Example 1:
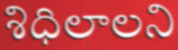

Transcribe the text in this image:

శిధిలాలని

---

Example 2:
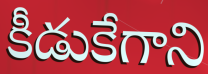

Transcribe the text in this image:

కీడుకేగాని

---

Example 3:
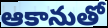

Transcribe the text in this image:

ఆకానుతో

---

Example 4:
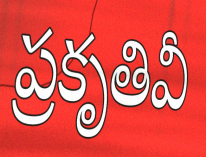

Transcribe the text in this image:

ప్రకృతివీ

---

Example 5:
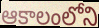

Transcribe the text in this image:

ఆకాలంలోని